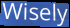
Wisely